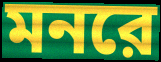
মনরে